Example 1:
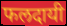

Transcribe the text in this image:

फलदायी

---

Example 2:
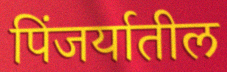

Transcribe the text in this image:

पिंजर्यातील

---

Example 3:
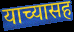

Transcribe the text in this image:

याच्यासह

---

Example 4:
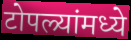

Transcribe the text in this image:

टोपल्यांमध्ये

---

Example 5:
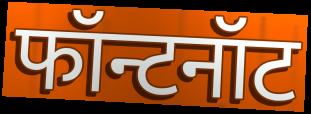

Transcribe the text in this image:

फॉन्टनॉट